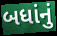
બધાંનું